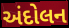
અંદોલન